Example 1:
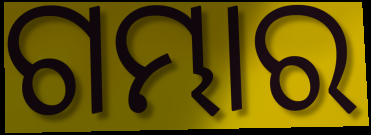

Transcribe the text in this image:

ଗମ୍ଭାର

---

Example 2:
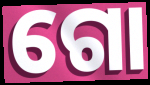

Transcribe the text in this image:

ଗୋ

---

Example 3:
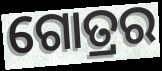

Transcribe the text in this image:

ଗୋତ୍ରର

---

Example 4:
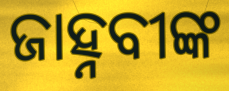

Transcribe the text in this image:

ଜାହ୍ନବୀଙ୍କ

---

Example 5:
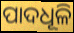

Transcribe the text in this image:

ପାଦଧୂଳି